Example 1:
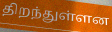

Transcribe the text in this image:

திறந்துள்ளன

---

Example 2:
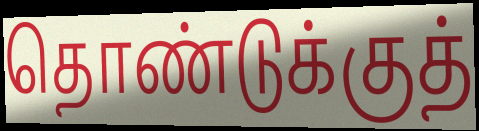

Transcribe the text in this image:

தொண்டுக்குத்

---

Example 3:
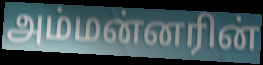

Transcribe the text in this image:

அம்மன்னரின்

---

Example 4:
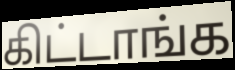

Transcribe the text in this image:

கிட்டாங்க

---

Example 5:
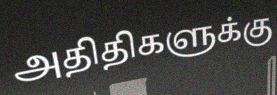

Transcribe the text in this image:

அதிதிகளுக்கு